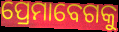
ପ୍ରେମାବେଗକୁ